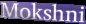
Mokshni